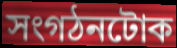
সংগঠনটোক